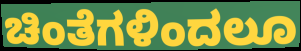
ಚಿಂತೆಗಳಿಂದಲೂ